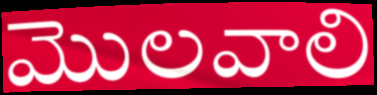
మొలవాలి